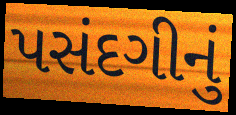
પસંદગીનું